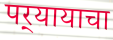
पर्यायाचा